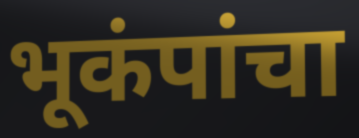
भूकंपांचा